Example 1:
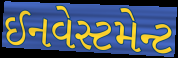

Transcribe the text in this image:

ઈનવેસ્ટમેન્ટ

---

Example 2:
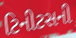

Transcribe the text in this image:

ટિનીટસની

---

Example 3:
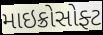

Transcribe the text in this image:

માઇક્રોસોફ્ટ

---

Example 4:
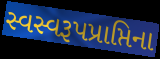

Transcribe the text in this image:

સ્વસ્વરૂપપ્રાપ્તિના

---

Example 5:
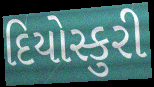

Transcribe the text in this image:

દિયોસ્કુરી